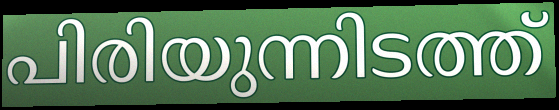
പിരിയുന്നിടത്ത്